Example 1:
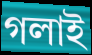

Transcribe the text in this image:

গলাই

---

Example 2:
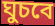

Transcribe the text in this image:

ঘুচবে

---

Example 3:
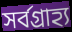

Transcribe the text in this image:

সর্বগ্রাহ্য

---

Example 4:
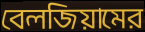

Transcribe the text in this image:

বেলজিয়ামের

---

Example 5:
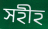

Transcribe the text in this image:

সহীহ